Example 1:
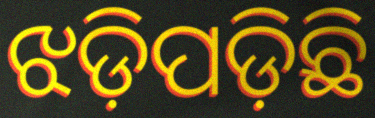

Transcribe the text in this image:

ଝଡ଼ିପଡ଼ିଛି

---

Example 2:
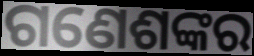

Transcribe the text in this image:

ଗଣେଶଙ୍କର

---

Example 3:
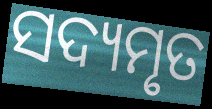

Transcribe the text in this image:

ସଦ୍ୟମୃତ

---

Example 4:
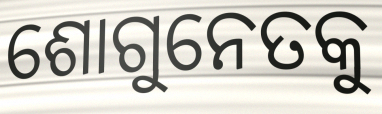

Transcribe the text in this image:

ଶୋଗୁନେତକୁ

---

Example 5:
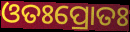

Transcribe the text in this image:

ଓତଃପ୍ରୋତଃ